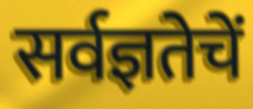
सर्वज्ञतेचें